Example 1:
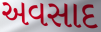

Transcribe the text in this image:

અવસાદ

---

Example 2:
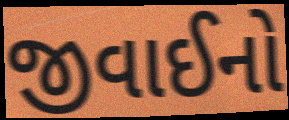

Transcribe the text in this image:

જીવાઈનો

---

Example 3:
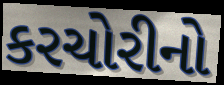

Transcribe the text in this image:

કરચોરીનો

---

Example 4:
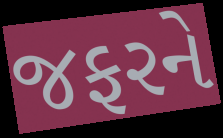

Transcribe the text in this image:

જફરને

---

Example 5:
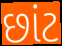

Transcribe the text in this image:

છાંટ